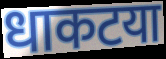
धाकटया